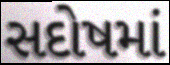
સદોષમાં